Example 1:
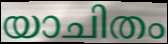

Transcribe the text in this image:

യാചിതം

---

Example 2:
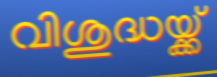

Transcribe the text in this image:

വിശുദ്ധയ്ക്ക്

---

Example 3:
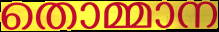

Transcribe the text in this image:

തൊമ്മാന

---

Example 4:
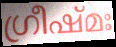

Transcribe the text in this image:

ഗ്രീഷ്മഃ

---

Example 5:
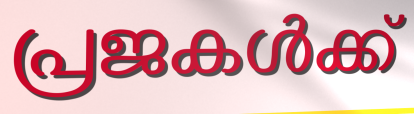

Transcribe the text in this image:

പ്രജകൾക്ക്